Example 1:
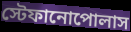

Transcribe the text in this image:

স্টেফানোপোলাস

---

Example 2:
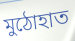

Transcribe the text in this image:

মুঠোহাত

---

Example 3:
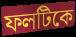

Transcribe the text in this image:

ফলটিকে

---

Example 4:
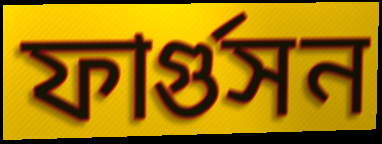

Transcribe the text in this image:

ফার্গুসন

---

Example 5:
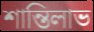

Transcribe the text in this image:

শান্তিলাভ